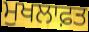
ਮੁਖਲਾਫ਼ਤ